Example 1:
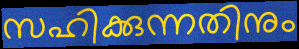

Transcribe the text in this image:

സഹിക്കുന്നതിനും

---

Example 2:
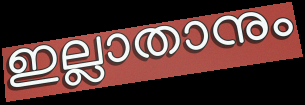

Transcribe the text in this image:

ഇല്ലാതാനും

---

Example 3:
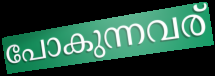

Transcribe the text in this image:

പോകുന്നവര്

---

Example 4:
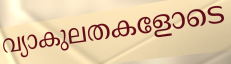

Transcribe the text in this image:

വ്യാകുലതകളോടെ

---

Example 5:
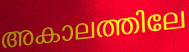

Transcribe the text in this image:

അകാലത്തിലേ